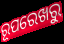
ରୂପରେଖରୁ